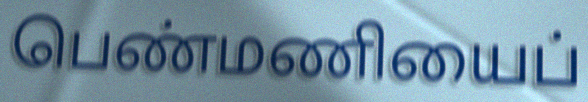
பெண்மணியைப்